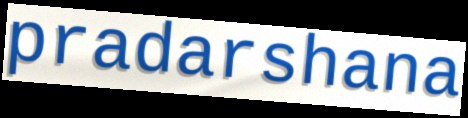
pradarshana